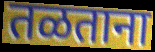
तळताना